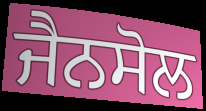
ਜੈਨਸੋਲ